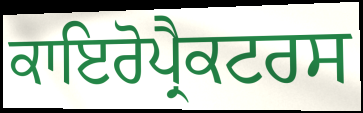
ਕਾਇਰੋਪ੍ਰੈਕਟਰਸ